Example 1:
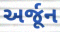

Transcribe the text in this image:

અર્જૂન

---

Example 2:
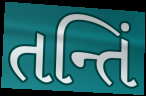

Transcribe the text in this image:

તન્તિં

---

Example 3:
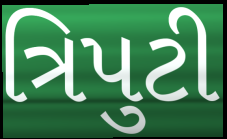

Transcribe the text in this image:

ત્રિપુટી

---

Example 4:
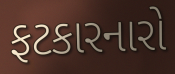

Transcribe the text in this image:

ફટકારનારો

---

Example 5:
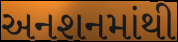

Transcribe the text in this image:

અનશનમાંથી